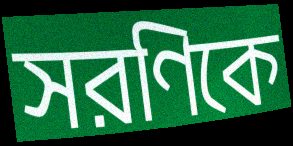
সরণিকে